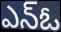
ఎన్ఓ